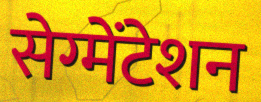
सेग्मेंटेशन